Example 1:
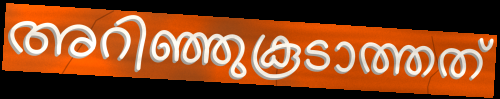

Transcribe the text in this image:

അറിഞ്ഞുകൂടാത്തത്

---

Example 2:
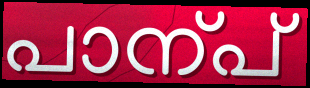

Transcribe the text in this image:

പാന്പ്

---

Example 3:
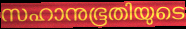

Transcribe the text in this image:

സഹാനുഭൂതിയുടെ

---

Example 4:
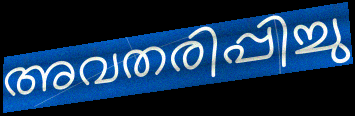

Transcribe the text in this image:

അവതരിപ്പിച്ചു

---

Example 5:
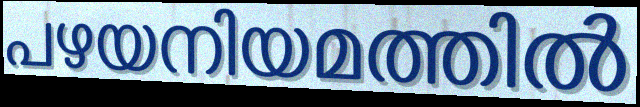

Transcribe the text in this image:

പഴയനിയമത്തിൽ